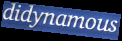
didynamous